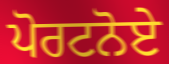
ਪੋਰਟਨੋਏ